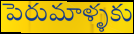
పెరుమాళ్ళకు